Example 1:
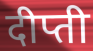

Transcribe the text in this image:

दीप्ती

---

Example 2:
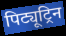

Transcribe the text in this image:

पिट्यूट्रिन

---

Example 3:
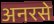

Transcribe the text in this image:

अनरसे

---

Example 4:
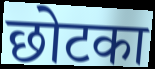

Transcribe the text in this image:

छोटका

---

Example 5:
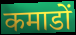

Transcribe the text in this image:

कमाडों